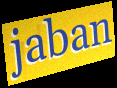
jaban